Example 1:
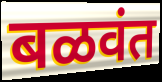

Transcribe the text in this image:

बळवंत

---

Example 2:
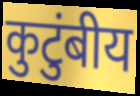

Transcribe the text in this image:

कुटुंबीय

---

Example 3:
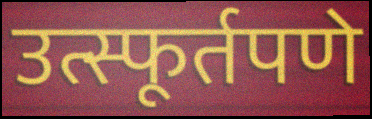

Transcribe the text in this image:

उत्स्फूर्तपणे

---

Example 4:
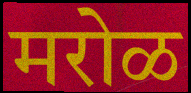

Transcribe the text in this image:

मरोळ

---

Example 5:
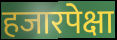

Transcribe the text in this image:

हजारपेक्षा